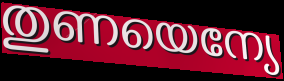
തുണയെന്യേ